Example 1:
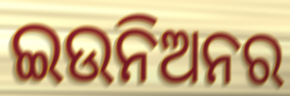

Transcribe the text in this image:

ଇଉନିଅନର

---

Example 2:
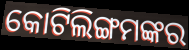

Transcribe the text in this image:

କୋଟିଲିଙ୍ଗମଙ୍କର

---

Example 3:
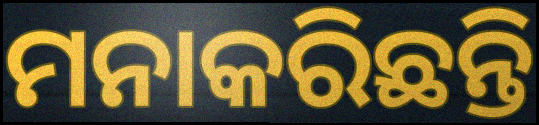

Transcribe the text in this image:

ମନାକରିଛନ୍ତି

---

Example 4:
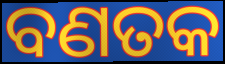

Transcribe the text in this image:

ବଣତକ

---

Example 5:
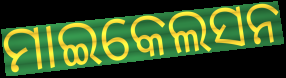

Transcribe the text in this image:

ମାଇକେଲସନ